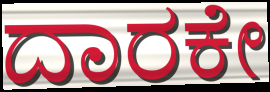
ದಾರಕೇ